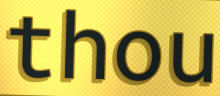
thou